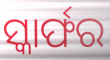
ସ୍କାର୍ଫର